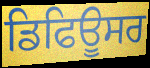
ਡਿਫਿਊਸਰ